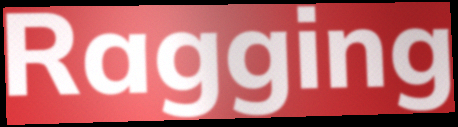
Ragging